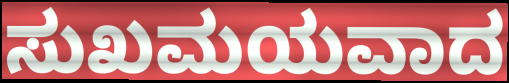
ಸುಖಮಯವಾದ